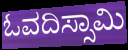
ಓವದಿಸ್ಸಾಮಿ